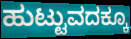
ಹುಟ್ಟುವದಕ್ಕೂ